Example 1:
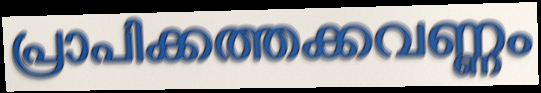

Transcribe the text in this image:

പ്രാപിക്കത്തക്കവണ്ണം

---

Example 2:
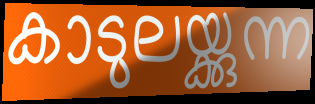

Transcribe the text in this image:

കാടുലയ്ക്കുന്ന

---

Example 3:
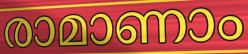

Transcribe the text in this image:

രാമാണാം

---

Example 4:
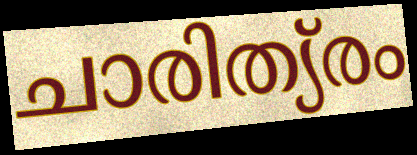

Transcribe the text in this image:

ചാരിത്യ്രം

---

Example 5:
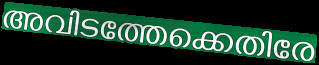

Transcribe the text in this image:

അവിടത്തേക്കെതിരേ